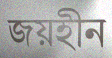
জয়হীন